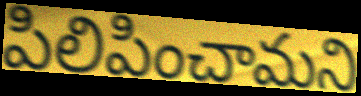
పిలిపించామని